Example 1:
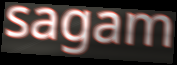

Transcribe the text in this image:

sagam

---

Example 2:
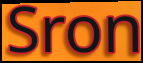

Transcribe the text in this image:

Sron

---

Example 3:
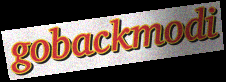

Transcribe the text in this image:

gobackmodi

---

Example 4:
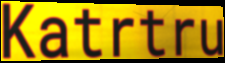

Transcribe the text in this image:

Katrtru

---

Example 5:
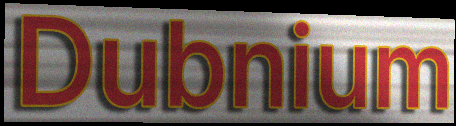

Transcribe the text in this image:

Dubnium